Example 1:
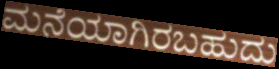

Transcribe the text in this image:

ಮನೆಯಾಗಿರಬಹುದು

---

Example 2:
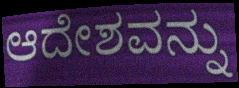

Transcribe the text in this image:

ಆದೇಶವನ್ನು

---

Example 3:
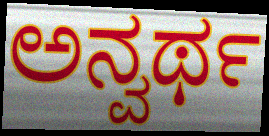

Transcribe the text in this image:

ಅನ್ವರ್ಥ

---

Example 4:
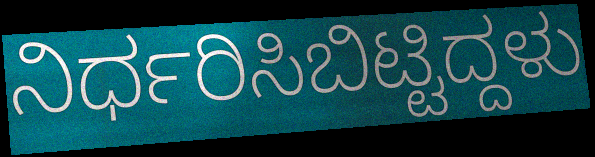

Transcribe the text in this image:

ನಿರ್ಧರಿಸಿಬಿಟ್ಟಿದ್ದಳು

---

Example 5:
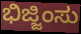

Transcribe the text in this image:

ಭಿಜ್ಜಿಂಸು